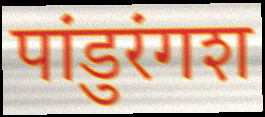
पांडुरंगश